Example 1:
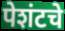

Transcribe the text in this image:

पेशंटचे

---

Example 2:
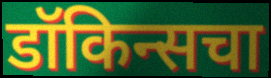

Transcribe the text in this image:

डॉकिन्सचा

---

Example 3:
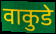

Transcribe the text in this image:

वाकुडे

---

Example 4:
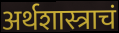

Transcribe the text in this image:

अर्थशास्त्राचं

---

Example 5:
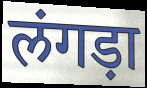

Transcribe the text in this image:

लंगड़ा